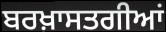
ਬਰਖ਼ਾਸਤਗੀਆਂ